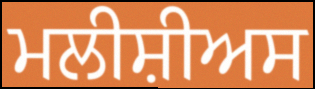
ਮਲੀਸ਼ੀਅਸ